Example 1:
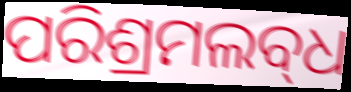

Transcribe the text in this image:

ପରିଶ୍ରମଲବ୍‍ଧ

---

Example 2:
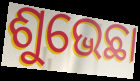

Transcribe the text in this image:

ଶୁଭେଛା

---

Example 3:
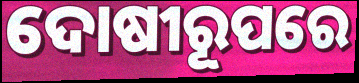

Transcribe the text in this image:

ଦୋଷୀରୂପରେ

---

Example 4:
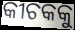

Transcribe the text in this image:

କୀଚକକୁ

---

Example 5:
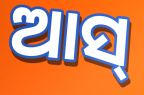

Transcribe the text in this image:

ଆସ୍